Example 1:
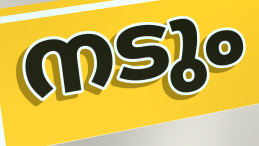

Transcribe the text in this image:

നടും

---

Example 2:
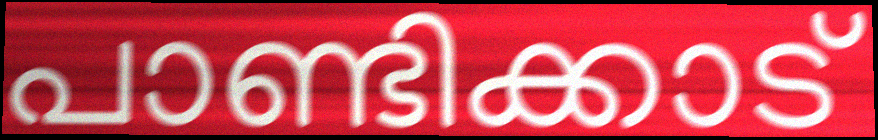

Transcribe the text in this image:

പാണ്ടിക്കാട്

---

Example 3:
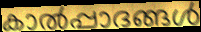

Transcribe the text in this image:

കാൽപ്പാദങ്ങൾ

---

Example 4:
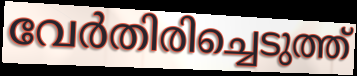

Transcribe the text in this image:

വേർതിരിച്ചെടുത്ത്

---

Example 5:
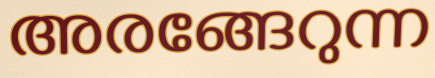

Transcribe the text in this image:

അരങ്ങേറുന്ന